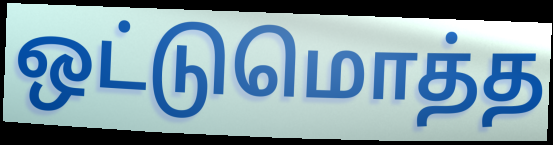
ஒட்டுமொத்த